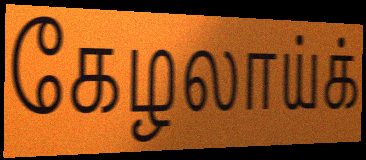
கேழலாய்க்